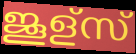
ജൂള്സ്